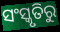
ସଂସ୍କୃତିରୁ